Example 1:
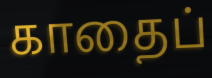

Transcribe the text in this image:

காதைப்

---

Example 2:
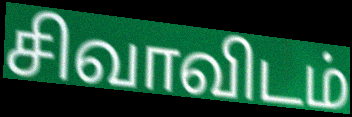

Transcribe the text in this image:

சிவாவிடம்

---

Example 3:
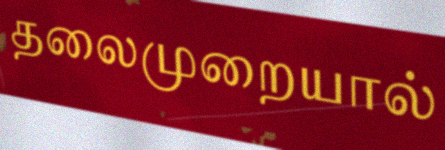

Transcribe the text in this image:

தலைமுறையால்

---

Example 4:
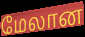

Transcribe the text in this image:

மேலான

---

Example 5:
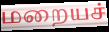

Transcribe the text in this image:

மறையச்